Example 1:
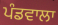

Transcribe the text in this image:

ਪੰਡਵਾਲਾ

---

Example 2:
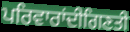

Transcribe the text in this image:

ਪਰਿਵਾਰਾਂਦੀਗਿਣਤੀ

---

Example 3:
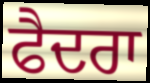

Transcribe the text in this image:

ਫੈਦਰਾ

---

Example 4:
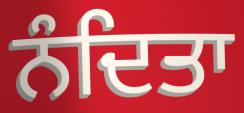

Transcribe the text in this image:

ਨੰਦਿਤਾ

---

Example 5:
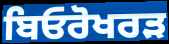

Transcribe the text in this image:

ਬਿਓਰੋਖਰੜ